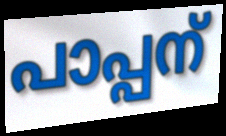
പാപ്പന്